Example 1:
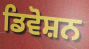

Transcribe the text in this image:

ਡਿਵੋਸ਼ਨ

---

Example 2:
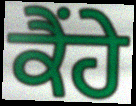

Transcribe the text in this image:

ਕੈਂਹੇ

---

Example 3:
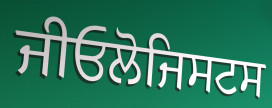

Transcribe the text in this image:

ਜੀਓਲੋਜਿਸਟਸ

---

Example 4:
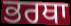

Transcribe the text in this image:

ਭਰਥਾ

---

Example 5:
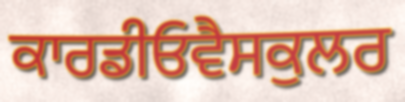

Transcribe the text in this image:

ਕਾਰਡੀਓਵੈਸਕੁਲਰ